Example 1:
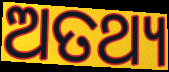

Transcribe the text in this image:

ଅତଥ୍ୟ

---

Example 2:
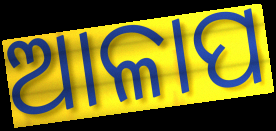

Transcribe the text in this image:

ଆଳାପ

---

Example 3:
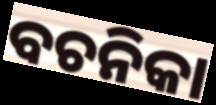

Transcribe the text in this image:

ବଚନିକା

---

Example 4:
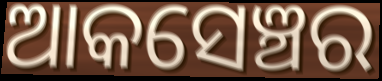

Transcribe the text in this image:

ଆକସେଞ୍ଚର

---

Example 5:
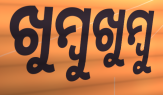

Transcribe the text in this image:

ଖୁମ୍ୱୁଖୁମ୍ବୁ